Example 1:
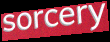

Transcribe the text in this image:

sorcery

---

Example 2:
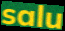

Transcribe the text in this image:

salu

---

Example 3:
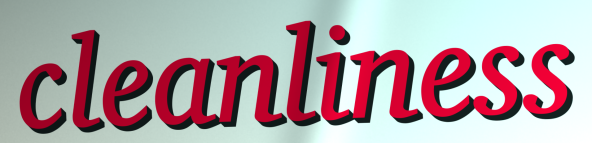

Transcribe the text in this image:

cleanliness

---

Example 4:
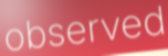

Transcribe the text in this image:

observed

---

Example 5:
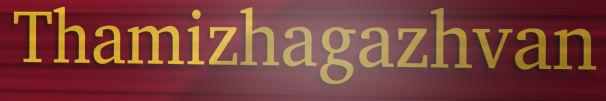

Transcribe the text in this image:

Thamizhagazhvan